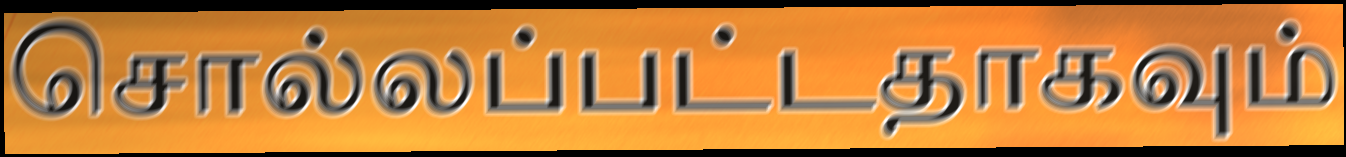
சொல்லப்பட்டதாகவும்